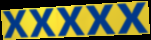
xxxxx